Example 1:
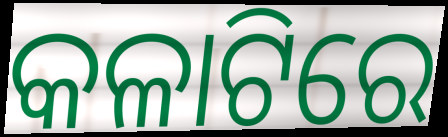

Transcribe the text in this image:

କଳାଟିରେ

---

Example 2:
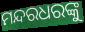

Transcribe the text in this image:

ମନ୍ଦରଧରଙ୍କୁ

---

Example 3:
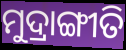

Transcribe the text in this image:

ମୁଦ୍ରାଙ୍ଗୀତି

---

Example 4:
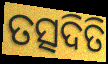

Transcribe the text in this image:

ତତ୍ସଦିତି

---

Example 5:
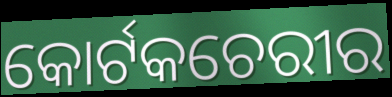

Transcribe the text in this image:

କୋର୍ଟକଚେରୀର